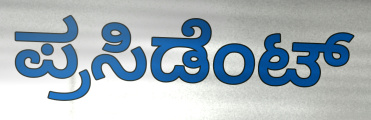
ಪ್ರಸಿಡೆಂಟ್